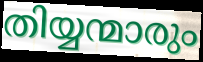
തിയ്യന്മാരും